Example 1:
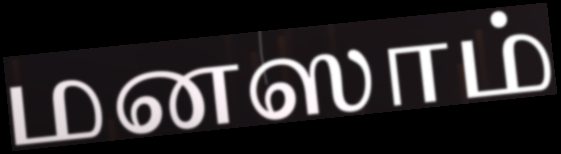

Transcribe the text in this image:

மனஸாம்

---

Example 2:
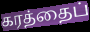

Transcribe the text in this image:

கரத்தைப்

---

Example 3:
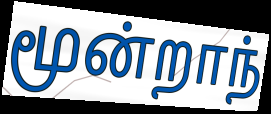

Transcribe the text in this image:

மூன்றாந்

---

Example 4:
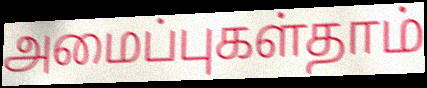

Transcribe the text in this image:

அமைப்புகள்தாம்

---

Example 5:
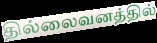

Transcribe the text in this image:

தில்லைவனத்தில்